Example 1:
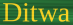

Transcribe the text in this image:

Ditwa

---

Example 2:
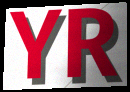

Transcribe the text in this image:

YR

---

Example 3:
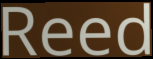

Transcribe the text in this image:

Reed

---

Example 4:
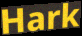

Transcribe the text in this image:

Hark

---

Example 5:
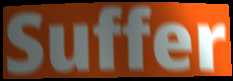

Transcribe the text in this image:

Suffer